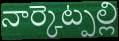
నార్కెట్పల్లి